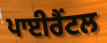
ਪਾਈਰੈਂਟਲ